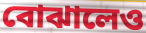
বোঝালেও